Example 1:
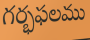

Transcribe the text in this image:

గర్భఫలము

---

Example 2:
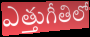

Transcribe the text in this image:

ఎత్తుగీతిలో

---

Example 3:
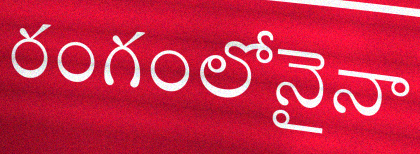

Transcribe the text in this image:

రంగంలోనైనా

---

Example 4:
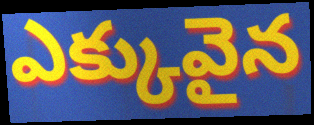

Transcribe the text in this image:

ఎక్కువైన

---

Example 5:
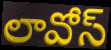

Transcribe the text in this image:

లావోస్